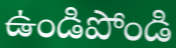
ఉండిపోండి